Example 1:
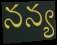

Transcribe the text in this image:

నన్య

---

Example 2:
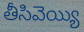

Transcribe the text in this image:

తీసివెయ్యి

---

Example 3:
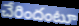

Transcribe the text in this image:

చేరిందంటూ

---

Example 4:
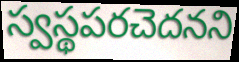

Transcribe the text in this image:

స్వస్థపరచెదనని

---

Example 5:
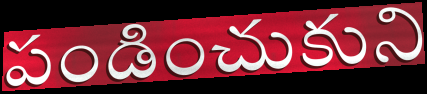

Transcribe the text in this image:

పండించుకుని